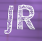
JR